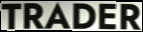
TRADER